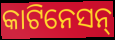
କାଟିନେସନ୍